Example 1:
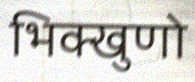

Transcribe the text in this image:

भिक्खुणो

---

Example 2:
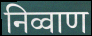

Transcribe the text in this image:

निव्वाण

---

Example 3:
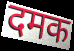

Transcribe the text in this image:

दमक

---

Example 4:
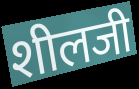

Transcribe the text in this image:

शीलजी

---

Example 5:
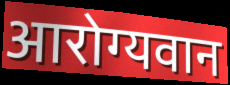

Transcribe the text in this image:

आरोग्यवान